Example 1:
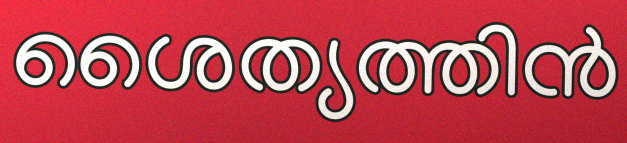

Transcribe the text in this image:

ശൈത്യത്തിൻ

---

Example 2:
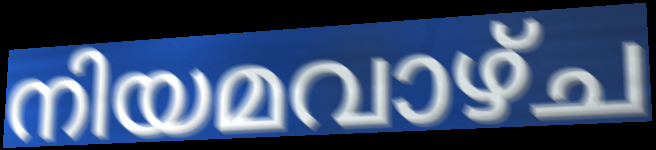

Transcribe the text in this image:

നിയമവാഴ്ച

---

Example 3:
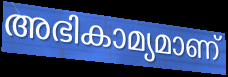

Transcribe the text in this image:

അഭികാമ്യമാണ്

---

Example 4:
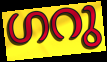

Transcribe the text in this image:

ഗറു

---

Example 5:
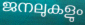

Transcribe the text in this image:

ജനലുകളും